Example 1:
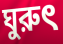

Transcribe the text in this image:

ঘুরুৎ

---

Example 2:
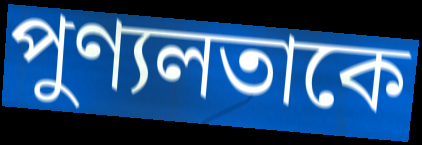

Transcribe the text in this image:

পুণ্যলতাকে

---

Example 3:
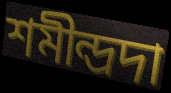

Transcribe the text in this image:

শমীন্দ্রদা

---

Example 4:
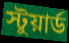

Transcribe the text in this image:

স্টুয়ার্ড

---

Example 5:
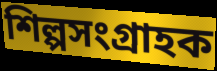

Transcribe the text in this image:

শিল্পসংগ্রাহক